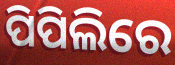
ପିପିଲିରେ